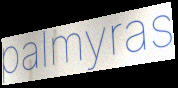
palmyras